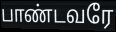
பாண்டவரே